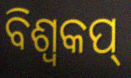
ବିଶ୍ୱକପ୍